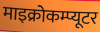
माइक्रोकम्प्यूटर